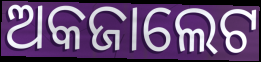
ଅକଜାଲେଟ